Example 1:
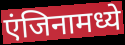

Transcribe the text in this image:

एंजिनामध्ये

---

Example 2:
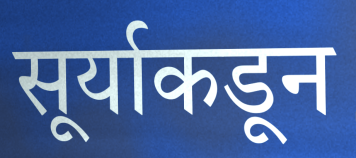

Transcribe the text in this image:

सूर्याकडून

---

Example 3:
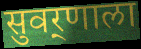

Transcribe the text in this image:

सुवर्णाला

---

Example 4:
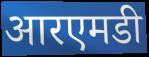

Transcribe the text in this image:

आरएमडी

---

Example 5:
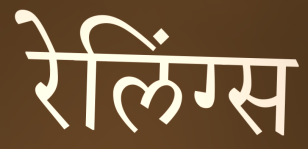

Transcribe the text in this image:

रेलिंग्स